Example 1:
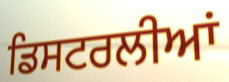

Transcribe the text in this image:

ਡਿਸਟਰਲੀਆਂ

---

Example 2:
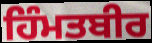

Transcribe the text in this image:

ਹਿੰਮਤਬੀਰ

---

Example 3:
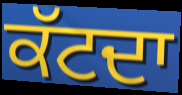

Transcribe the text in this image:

ਕੱਟਦਾ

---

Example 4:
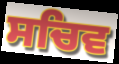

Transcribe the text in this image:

ਸਚਿਵ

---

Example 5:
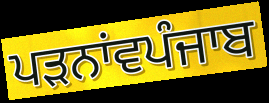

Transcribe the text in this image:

ਪੜਨਾਂਵਪੰਜਾਬ